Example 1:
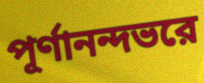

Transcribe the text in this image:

পূর্ণানন্দভরে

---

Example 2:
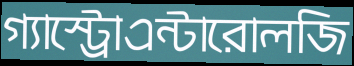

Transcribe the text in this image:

গ্যাস্ট্রোএন্টারোলজি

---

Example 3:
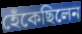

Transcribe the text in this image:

হেঁকেছিলেন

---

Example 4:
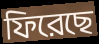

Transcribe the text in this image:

ফিরেছে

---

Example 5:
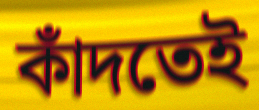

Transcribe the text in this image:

কাঁদতেই